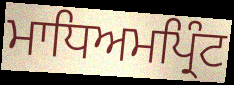
ਮਾਧਿਅਮਪ੍ਰਿੰਟ